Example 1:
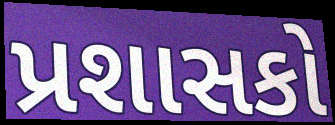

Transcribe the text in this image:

પ્રશાસકો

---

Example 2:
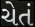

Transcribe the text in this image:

ચેતં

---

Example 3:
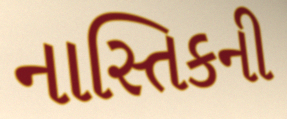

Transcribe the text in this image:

નાસ્તિકની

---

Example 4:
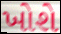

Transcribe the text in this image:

ખોશે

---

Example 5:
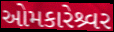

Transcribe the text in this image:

ઓમકારેશ્ર્વર